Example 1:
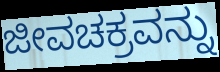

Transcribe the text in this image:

ಜೀವಚಕ್ರವನ್ನು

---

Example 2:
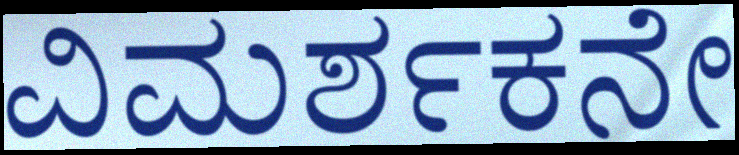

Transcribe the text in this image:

ವಿಮರ್ಶಕನೇ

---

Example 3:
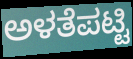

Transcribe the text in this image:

ಅಳತೆಪಟ್ಟಿ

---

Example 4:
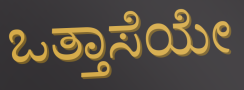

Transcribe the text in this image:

ಒತ್ತಾಸೆಯೇ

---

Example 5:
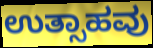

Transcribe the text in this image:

ಉತ್ಸಾಹವು